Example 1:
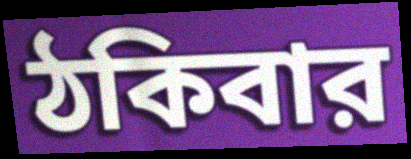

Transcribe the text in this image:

ঠকিবার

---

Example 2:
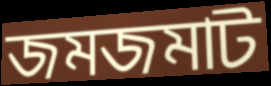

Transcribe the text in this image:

জমজমাট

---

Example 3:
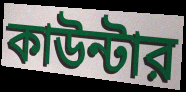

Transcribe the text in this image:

কাউন্টার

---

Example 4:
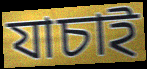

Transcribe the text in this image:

যাচাই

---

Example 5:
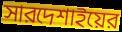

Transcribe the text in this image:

সারদেশাইয়ের